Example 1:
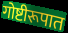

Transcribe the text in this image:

गोष्टीरूपात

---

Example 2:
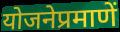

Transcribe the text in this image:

योजनेप्रमाणें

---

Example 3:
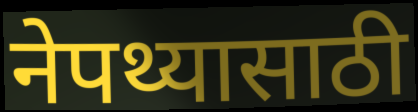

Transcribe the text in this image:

नेपथ्यासाठी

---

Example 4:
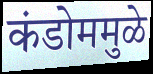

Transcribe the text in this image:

कंडोममुळे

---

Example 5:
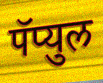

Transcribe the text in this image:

पॅप्युल